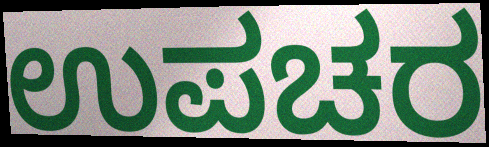
ಉಪಚರ